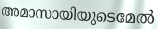
അമാസായിയുടെമേൽ